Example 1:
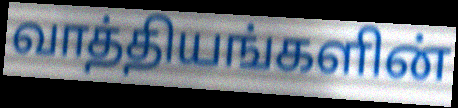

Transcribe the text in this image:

வாத்தியங்களின்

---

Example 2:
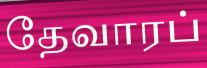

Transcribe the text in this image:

தேவாரப்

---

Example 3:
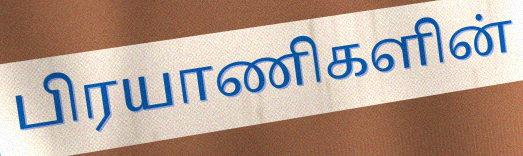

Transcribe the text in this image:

பிரயாணிகளின்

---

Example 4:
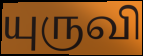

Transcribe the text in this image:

யுருவி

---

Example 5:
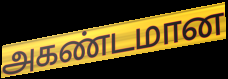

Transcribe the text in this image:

அகண்டமான